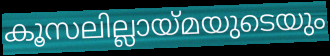
കൂസലില്ലായ്മയുടെയും